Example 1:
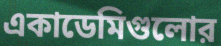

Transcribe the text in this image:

একাডেমিগুলোর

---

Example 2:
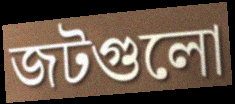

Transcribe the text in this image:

জটগুলো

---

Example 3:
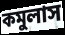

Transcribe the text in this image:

কমুলাস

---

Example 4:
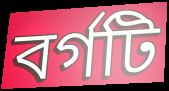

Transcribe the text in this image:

বর্গটি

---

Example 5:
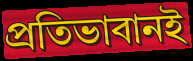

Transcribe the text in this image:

প্রতিভাবানই